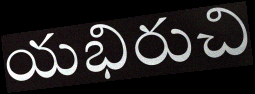
యభిరుచి